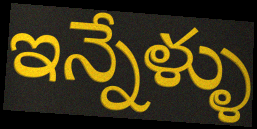
ఇన్నేళ్ళు